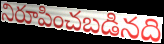
నిరూపించబడినది